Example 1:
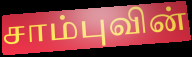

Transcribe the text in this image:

சாம்புவின்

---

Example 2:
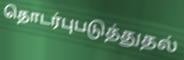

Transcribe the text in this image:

தொடர்புபடுத்துதல்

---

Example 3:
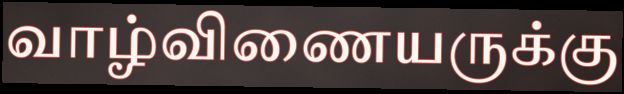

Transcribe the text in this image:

வாழ்விணையருக்கு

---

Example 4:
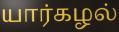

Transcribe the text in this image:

யார்கழல்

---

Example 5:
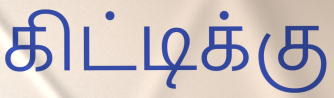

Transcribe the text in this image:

கிட்டிக்கு